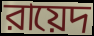
রায়েদ